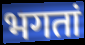
भगतां